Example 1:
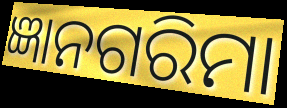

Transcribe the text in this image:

ଜ୍ଞାନଗରିମା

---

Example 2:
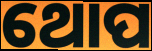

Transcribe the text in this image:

ଥୋପ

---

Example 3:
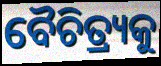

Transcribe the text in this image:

ବୈଚିତ୍ର୍ୟକୁ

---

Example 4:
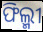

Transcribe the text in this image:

ଫିଲ୍ମୀ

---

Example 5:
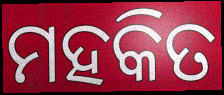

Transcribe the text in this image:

ମହକିତ